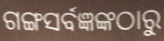
ଗଙ୍ଗସର୍ବଜ୍ଞଙ୍କଠାରୁ